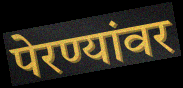
पेरण्यांवर